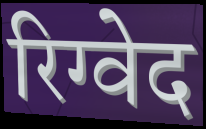
रिग्वेद